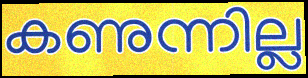
കണുന്നില്ല